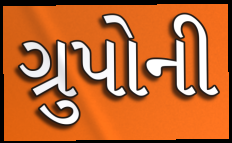
ગ્રુપોની